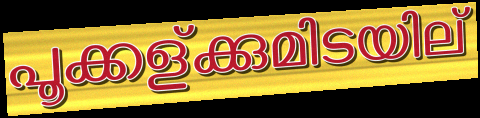
പൂക്കള്ക്കുമിടയില്